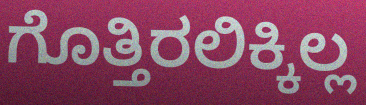
ಗೊತ್ತಿರಲಿಕ್ಕಿಲ್ಲ